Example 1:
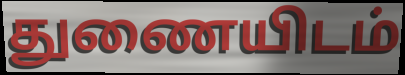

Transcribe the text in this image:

துணையிடம்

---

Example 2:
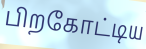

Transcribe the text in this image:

பிறகோட்டிய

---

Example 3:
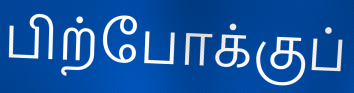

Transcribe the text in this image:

பிற்போக்குப்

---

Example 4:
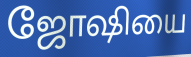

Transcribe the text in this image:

ஜோஷியை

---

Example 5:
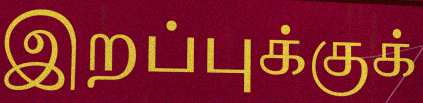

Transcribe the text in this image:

இறப்புக்குக்